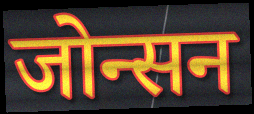
जोन्सन